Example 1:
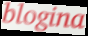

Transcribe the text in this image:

blogina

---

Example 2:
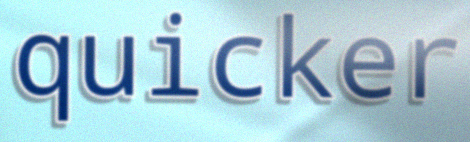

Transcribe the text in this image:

quicker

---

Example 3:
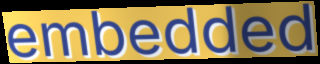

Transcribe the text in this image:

embedded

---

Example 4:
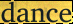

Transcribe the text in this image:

dance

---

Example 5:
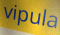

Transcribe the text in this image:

vipula